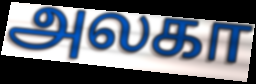
அலகா